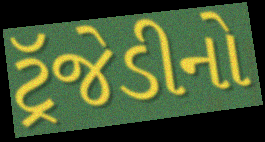
ટ્રૅજેડીનો